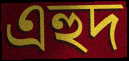
এহুদ